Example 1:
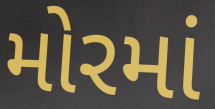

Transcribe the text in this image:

મોરમાં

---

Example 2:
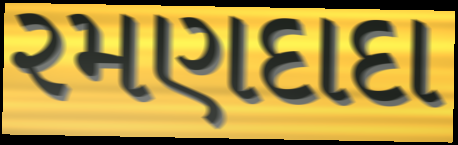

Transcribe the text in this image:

રમણદાદા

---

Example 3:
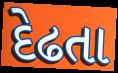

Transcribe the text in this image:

દેઢતા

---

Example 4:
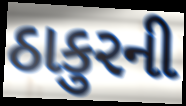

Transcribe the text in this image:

ઠાકુરની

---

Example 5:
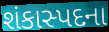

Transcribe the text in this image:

શંકાસ્પદના